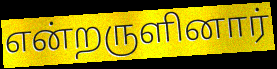
என்றருளினார்